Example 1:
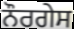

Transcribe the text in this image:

ਨੌਰਗੇਸ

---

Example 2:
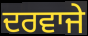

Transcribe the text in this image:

ਦਰਵਾਜੇ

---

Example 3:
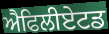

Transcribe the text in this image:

ਐਫਿਲੀਏਟਡ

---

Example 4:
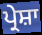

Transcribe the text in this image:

ਪ੍ਰੇਸ਼ਾ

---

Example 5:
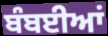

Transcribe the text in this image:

ਬੰਬਈਆਂ